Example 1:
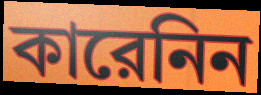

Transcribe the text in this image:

কারেনিন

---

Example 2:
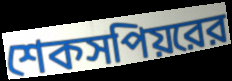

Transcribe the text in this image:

শেকসপিয়রের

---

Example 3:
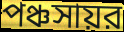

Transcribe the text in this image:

পঞ্চসায়র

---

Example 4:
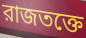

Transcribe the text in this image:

রাজতক্তে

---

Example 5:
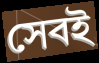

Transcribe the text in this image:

সেবই